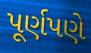
પૂર્ણપણે